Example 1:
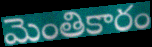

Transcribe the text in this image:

మెంతికారం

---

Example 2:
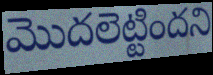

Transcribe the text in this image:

మొదలెట్టిందని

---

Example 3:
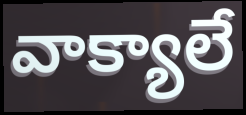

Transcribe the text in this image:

వాక్యాలే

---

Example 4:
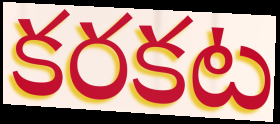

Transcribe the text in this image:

కరకట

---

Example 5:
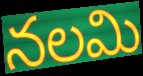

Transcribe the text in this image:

నలమి